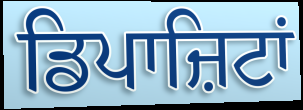
ਡਿਪਾਜ਼ਿਟਾਂ